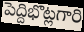
పెద్దిభొట్లగారి